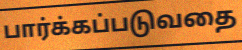
பார்க்கப்படுவதை